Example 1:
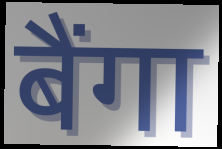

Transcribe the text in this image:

बैंगा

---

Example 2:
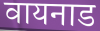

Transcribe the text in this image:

वायनाड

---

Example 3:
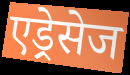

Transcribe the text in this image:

एड्रेसेज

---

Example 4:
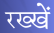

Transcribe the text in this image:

रख्खें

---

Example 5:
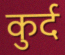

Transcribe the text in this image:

कुर्द